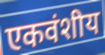
एकवंशीय